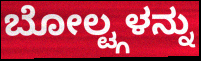
ಬೋಲ್ಟ್ಗಳನ್ನು